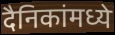
दैनिकांमध्ये